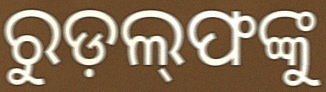
ରୁଡ଼ଲ୍‍ଫଙ୍କୁ